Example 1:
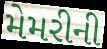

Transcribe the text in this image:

મેમરીની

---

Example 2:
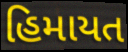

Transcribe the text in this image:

હિમાયત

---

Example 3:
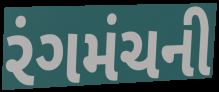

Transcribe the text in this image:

રંગમંચની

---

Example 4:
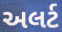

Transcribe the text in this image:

અલર્ટ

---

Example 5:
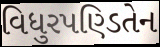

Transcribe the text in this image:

વિધુરપણ્ડિતેન